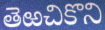
తెఱచికొని